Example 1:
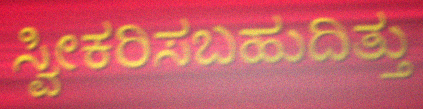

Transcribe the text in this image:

ಸ್ವೀಕರಿಸಬಹುದಿತ್ತು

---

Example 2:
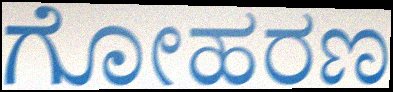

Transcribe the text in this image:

ಗೋಹರಣ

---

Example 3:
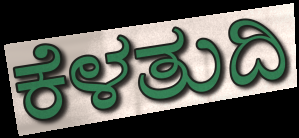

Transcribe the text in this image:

ಕೆಳತುದಿ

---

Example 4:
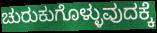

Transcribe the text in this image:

ಚುರುಕುಗೊಳ್ಳುವುದಕ್ಕೆ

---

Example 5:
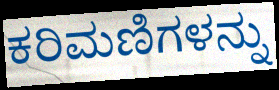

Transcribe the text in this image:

ಕರಿಮಣಿಗಳನ್ನು